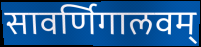
सावर्णिगालवम्